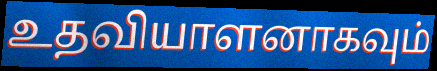
உதவியாளனாகவும்